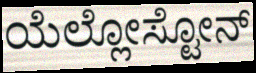
ಯೆಲ್ಲೋಸ್ಟೋನ್